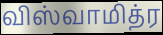
விஸ்வாமித்ர